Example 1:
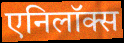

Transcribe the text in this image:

एनिलॉक्स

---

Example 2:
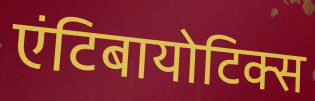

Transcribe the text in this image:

एंटिबायोटिक्स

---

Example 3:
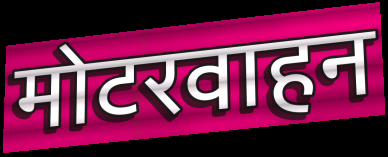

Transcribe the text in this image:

मोटरवाहन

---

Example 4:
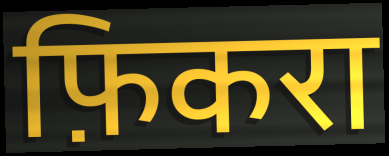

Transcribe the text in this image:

फ़िकरा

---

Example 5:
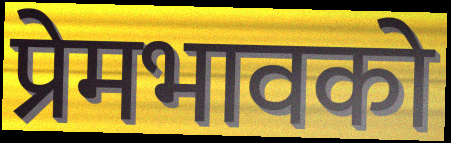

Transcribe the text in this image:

प्रेमभावको